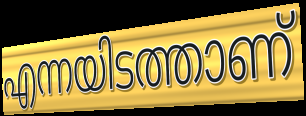
എന്നയിടത്താണ്